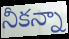
నీకన్నా